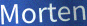
Morten